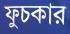
ফুচকার